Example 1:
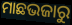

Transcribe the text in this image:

ମାଛଭଜାରୁ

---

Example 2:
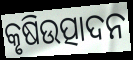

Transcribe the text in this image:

କୃଷିଉତ୍ପାଦନ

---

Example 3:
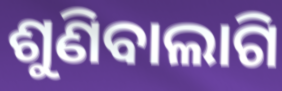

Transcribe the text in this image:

ଶୁଣିବାଲାଗି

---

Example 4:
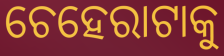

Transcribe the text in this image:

ଚେହେରାଟାକୁ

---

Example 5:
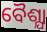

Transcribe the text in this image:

ବୈଶ୍ଯା